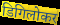
डिगिलोकर